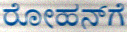
ರೋಹನ್‌ಗೆ